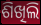
ଶିଖିଲି